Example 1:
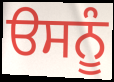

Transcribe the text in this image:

ੳਸਨੂੰ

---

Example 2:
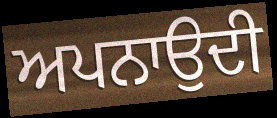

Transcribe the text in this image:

ਅਪਨਾਉਦੀ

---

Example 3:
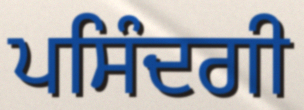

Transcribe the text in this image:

ਪਸਿੰਦਗੀ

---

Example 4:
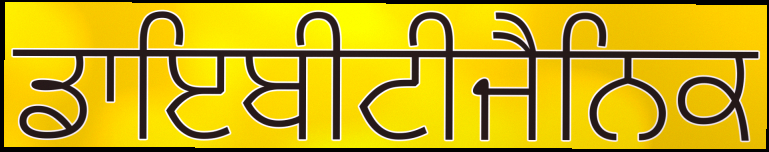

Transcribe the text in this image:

ਡਾਇਬੀਟੀਜੈਨਿਕ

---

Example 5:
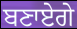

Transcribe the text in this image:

ਬਣਾਏਗੇ